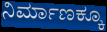
ನಿರ್ಮಾಣಕ್ಕೂ